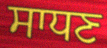
ਸਾਧਣ